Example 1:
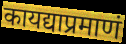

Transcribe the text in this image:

कायद्याप्रमाणं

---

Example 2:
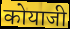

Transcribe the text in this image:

कोयाजी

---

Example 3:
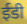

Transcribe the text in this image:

ईडी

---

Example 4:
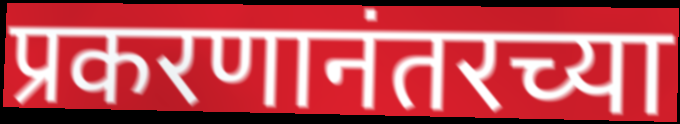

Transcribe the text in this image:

प्रकरणानंतरच्या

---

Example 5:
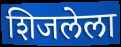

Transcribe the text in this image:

शिजलेला